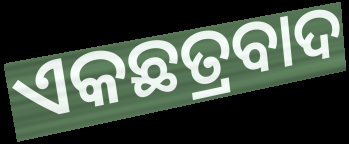
ଏକଛତ୍ରବାଦ